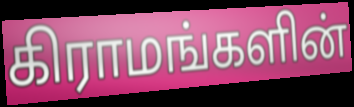
கிராமங்களின்